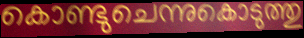
കൊണ്ടുചെന്നുകൊടുത്തു